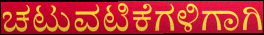
ಚಟುವಟಿಕೆಗಳಿಗಾಗಿ